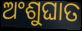
ଅଂଶୁଘାତ